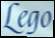
Lego